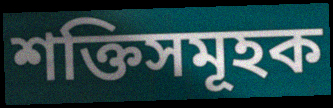
শক্তিসমূহক